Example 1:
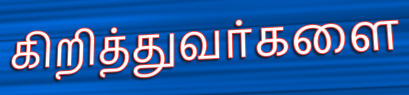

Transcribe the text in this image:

கிறித்துவர்களை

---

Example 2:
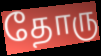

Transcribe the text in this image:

தோரு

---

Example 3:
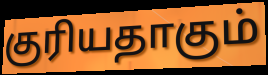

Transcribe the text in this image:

குரியதாகும்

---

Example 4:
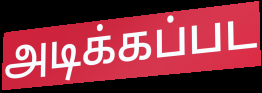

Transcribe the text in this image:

அடிக்கப்பட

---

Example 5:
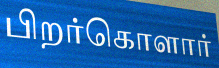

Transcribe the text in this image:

பிறர்கொளார்